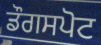
ਡੌਗਸਪੋਟ